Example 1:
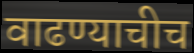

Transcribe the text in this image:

वाढण्याचीच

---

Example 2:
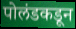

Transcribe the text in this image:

पोलंडकडून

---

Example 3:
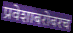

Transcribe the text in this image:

प्रवेशाबरोबरच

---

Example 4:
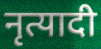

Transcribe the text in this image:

नृत्यादी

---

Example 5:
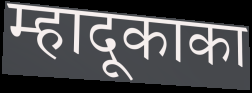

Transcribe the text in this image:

म्हादूकाका